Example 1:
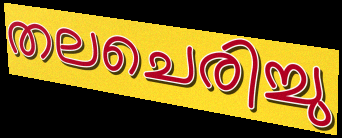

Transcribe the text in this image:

തലചെരിച്ചു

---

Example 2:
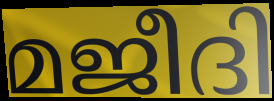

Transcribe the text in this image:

മജീദി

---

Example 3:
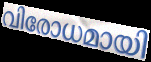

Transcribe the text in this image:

വിരോധമായി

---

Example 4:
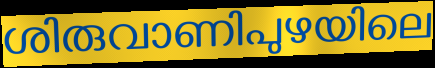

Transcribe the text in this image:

ശിരുവാണിപുഴയിലെ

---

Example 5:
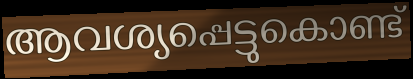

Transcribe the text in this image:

ആവശ്യപ്പെട്ടുകൊണ്ട്